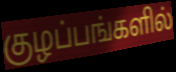
குழப்பங்களில்